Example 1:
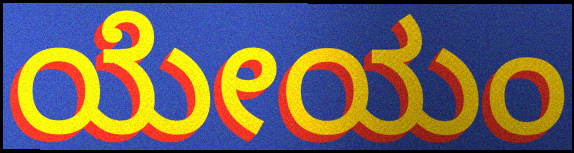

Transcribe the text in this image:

ಯೇಯಂ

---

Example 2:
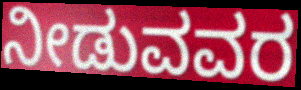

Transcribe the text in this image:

ನೀಡುವವರ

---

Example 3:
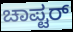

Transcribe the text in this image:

ಚಾಪ್ಟರ್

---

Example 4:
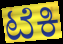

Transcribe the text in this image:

ಟೆಕಿ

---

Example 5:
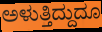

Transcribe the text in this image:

ಅಳುತ್ತಿದ್ದುದೂ